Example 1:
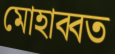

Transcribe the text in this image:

মোহাব্বত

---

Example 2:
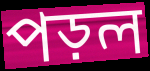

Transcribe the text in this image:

পড়্ল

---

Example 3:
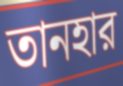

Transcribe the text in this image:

তানহার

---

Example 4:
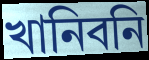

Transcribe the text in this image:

খানিবনি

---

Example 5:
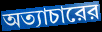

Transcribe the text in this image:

অত্যাচারের